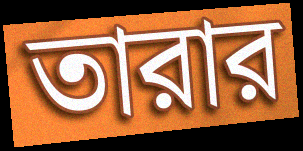
তারার